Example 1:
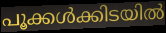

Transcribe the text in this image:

പൂക്കൾക്കിടയിൽ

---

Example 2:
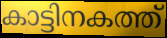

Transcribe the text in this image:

കാട്ടിനകത്ത്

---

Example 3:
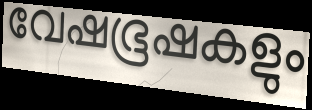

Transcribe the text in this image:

വേഷഭൂഷകളും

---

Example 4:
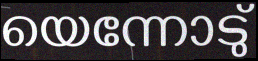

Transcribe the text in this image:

യെന്നോടു്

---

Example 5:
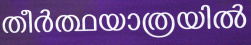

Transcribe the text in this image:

തീർത്ഥയാത്രയിൽ